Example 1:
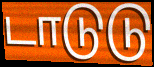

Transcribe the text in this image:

டாடுடு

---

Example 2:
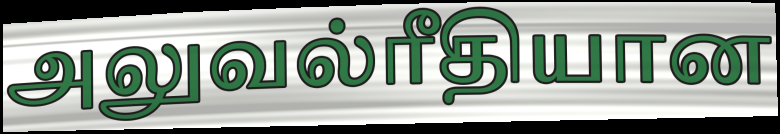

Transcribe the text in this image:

அலுவல்ரீதியான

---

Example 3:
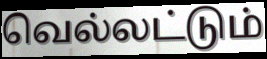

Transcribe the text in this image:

வெல்லட்டும்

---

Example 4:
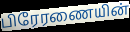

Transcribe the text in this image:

பிரேரணையின்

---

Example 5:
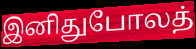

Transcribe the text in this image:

இனிதுபோலத்